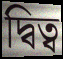
দ্বিত্ব